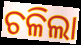
ଚଳିଲା